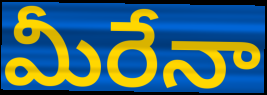
మీరేనా